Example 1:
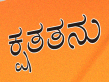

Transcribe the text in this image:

ಕ್ಷತತನು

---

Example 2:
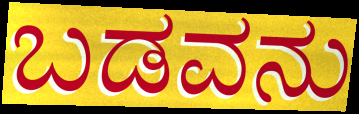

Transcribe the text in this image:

ಬಡವನು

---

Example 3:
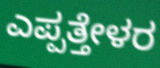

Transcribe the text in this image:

ಎಪ್ಪತ್ತೇಳರ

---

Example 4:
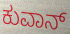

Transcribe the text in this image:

ಕುವಾನ್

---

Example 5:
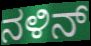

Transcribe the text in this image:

ನಳಿನ್